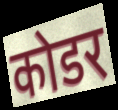
कोडर